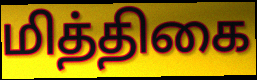
மித்திகை